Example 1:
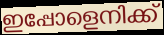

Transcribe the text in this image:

ഇപ്പോളെനിക്ക്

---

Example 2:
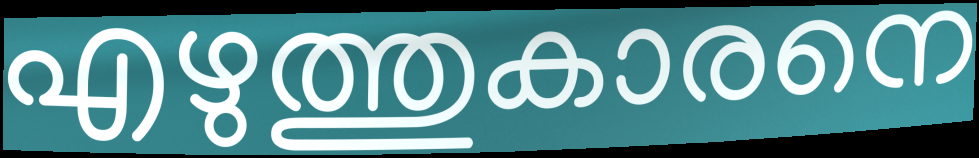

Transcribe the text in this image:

എഴുത്തുകാരനെ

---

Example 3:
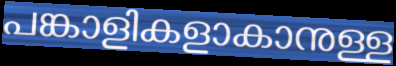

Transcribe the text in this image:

പങ്കാളികളാകാനുള്ള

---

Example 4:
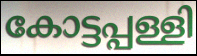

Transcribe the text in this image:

കോട്ടപ്പള്ളി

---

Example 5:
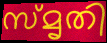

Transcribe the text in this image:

സ്മൃതി